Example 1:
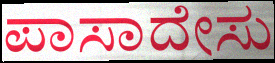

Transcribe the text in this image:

ಪಾಸಾದೇಸು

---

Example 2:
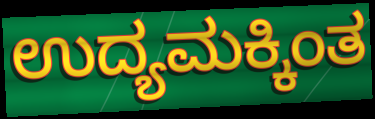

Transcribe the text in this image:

ಉದ್ಯಮಕ್ಕಿಂತ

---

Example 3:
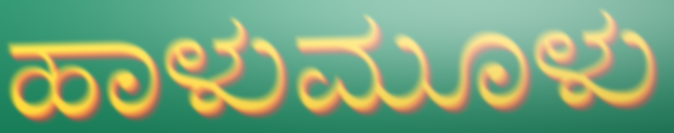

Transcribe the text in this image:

ಹಾಳುಮೂಳು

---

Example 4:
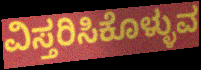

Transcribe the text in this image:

ವಿಸ್ತರಿಸಿಕೊಳ್ಳುವ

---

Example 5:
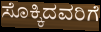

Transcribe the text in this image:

ಸೊಕ್ಕಿದವರಿಗೆ